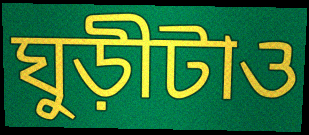
ঘুড়ীটাও